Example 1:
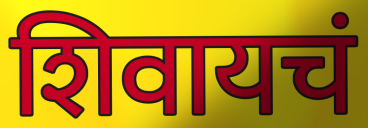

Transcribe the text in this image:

शिवायचं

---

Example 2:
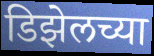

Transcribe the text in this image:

डिझेलच्या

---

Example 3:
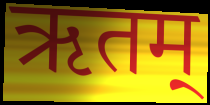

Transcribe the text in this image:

ऋतम्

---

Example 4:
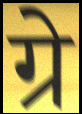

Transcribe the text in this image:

ग्रे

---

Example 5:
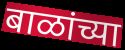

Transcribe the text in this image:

बाळांच्या